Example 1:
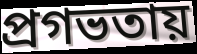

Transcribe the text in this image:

প্রগভতায়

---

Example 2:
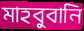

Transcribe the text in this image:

মাহবুবানি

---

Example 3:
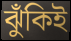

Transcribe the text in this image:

ঝুঁকিই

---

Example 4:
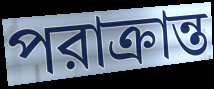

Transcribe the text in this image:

পরাক্রান্ত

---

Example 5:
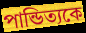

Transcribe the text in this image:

পান্ডিত্যকে